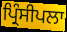
ਪ੍ਰਿੰਸੀਪਲਾ